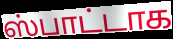
ஸ்பாட்டாக